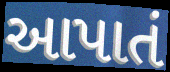
આપાતં